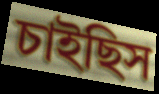
চাইছিস